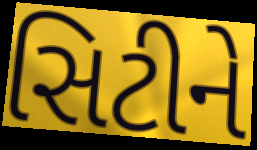
સિટીને